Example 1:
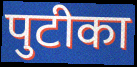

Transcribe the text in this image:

पुटीका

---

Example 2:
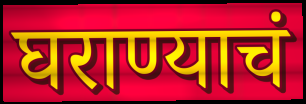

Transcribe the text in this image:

घराण्याचं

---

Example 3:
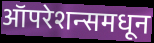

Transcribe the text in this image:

ऑपरेशन्समधून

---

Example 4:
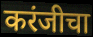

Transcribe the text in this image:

करंजीचा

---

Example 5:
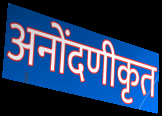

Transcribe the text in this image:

अनोंदणीकृत